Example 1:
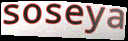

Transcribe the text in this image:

soseya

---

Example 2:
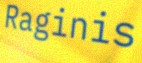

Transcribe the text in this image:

Raginis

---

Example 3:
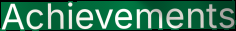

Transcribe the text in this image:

Achievements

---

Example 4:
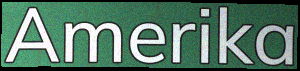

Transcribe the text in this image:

Amerika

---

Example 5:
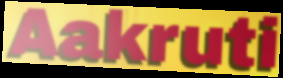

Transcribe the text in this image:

Aakruti